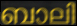
ബാലി